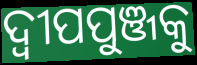
ଦ୍ଵୀପପୁଞ୍ଜକୁ